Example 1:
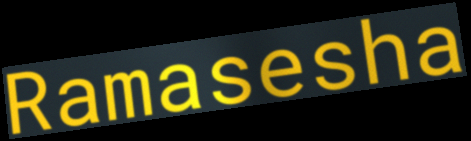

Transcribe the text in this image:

Ramasesha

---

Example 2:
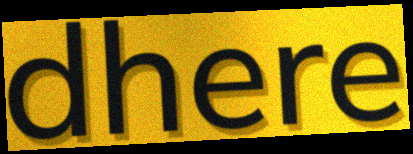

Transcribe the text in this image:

dhere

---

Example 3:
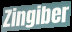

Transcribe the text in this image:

Zingiber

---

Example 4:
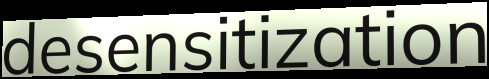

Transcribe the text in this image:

desensitization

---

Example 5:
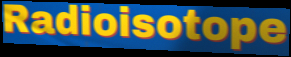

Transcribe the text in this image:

Radioisotope